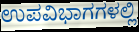
ಉಪವಿಭಾಗಗಳಲ್ಲಿ